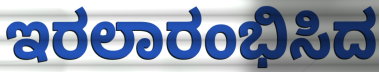
ಇರಲಾರಂಭಿಸಿದ